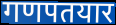
गणपतयार